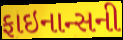
ફાઇનાન્સની